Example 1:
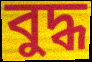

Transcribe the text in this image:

বুদ্ধ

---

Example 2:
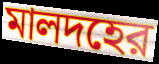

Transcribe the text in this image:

মালদহের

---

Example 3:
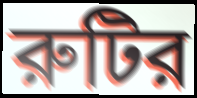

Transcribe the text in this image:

রুটির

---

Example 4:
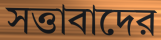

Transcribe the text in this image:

সত্তাবাদের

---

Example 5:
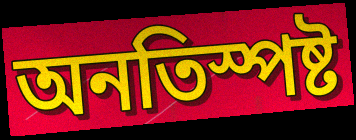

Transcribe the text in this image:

অনতিস্পষ্ট